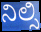
ನಿಲ್ಸಿ